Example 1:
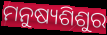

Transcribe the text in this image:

ମନୁଷ୍ୟଶିଶୁର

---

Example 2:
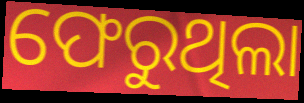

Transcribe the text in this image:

ଫେରୁଥିଲା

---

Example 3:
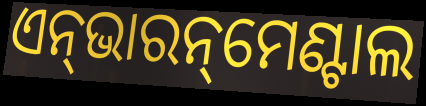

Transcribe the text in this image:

ଏନ୍‌ଭାରନ୍‌ମେଣ୍ଟାଲ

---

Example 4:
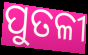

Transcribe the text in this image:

ପୁତଳୀ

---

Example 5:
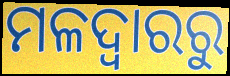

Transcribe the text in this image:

ମଳଦ୍ୱାରରୁ